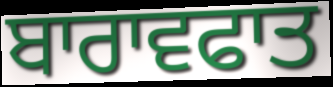
ਬਾਰਾਵਫਾਤ